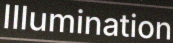
Illumination